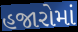
હજારોમાં